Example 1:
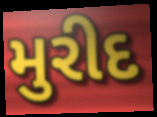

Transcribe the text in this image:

મુરીદ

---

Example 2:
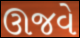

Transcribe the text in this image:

ઊજવે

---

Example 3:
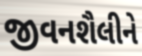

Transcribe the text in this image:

જીવનશૈલીને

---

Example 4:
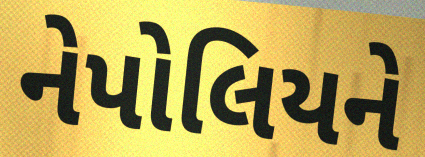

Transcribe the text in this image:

નેપોલિયને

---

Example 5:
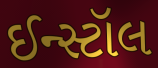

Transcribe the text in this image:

ઈન્સ્ટૉલ